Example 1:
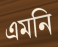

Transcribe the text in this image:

এমনি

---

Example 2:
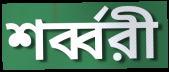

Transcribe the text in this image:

শর্ব্বরী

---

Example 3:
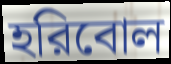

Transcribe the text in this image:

হরিবোল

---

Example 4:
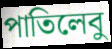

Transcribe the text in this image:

পাতিলেবু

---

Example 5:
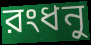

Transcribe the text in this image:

রংধনু